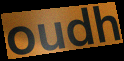
oudh